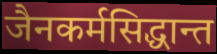
जैनकर्मसिद्धान्त